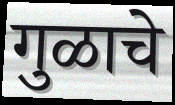
गुळाचे